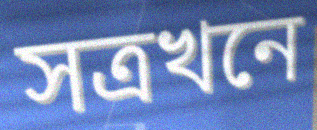
সত্ৰখনে